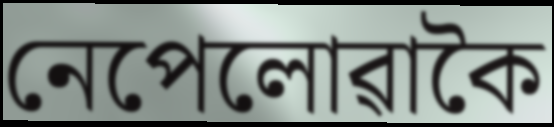
নেপেলোৱাকৈ